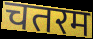
चतरम